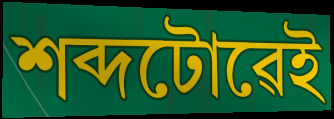
শব্দটোৱেই